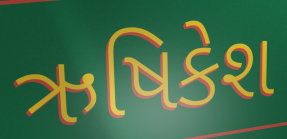
ઋષિકેશ